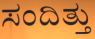
ಸಂದಿತ್ತು